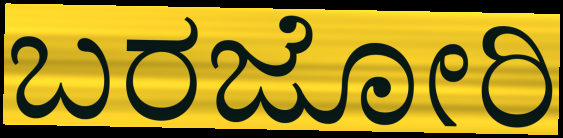
ಬರಜೋರಿ